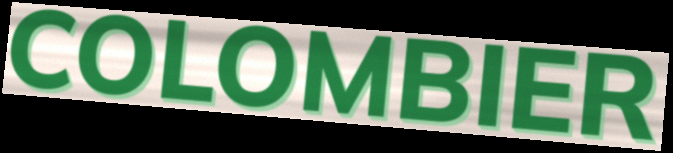
COLOMBIER